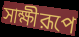
সাক্ষীরূপে